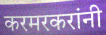
करमरकरांनी